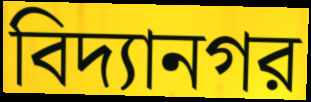
বিদ্যানগর